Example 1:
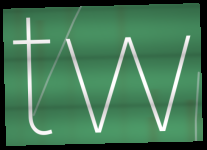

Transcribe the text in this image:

tw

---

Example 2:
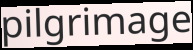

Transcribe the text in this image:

pilgrimage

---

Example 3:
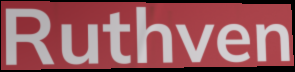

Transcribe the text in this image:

Ruthven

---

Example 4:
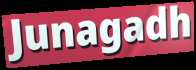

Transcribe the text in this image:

Junagadh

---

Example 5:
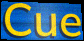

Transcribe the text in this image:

Cue